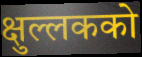
क्षुल्लकको